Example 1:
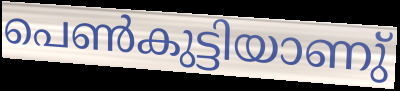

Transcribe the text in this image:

പെൺകുട്ടിയാണു്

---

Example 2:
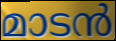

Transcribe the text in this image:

മാടൻ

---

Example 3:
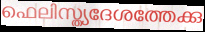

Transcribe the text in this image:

ഫെലിസ്ത്യദേശത്തേക്കു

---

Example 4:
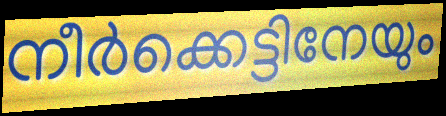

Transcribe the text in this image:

നീർക്കെട്ടിനേയും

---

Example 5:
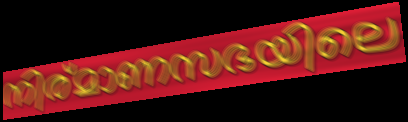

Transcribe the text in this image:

നിര്മാണസഭയിലെ